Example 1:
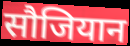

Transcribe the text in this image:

सौजियान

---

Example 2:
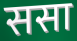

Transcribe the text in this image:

ससा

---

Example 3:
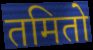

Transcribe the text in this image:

तमितो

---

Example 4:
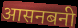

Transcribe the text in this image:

आसनबनी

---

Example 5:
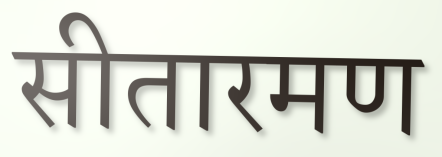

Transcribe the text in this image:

सीतारमण